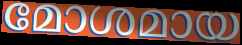
മോശമായ